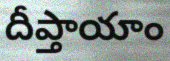
దీప్తాయాం